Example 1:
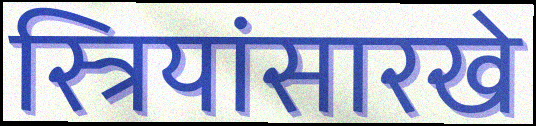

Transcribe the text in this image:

स्त्रियांसारखे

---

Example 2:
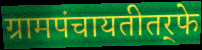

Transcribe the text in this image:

ग्रामपंचायतीतर्फे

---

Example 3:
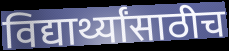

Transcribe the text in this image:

विद्यार्थ्यांसाठीच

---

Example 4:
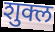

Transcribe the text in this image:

शुक्‍ल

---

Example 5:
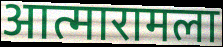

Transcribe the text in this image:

आत्मारामला